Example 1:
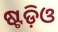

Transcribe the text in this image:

ଷ୍ଟଡ଼ିଓ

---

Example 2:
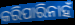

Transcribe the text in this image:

କରିପାରିନାହଁ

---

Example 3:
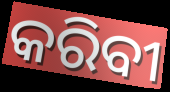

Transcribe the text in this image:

କରିବୀ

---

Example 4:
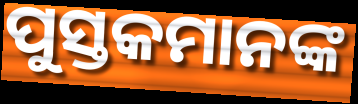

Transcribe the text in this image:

ପୁସ୍ତକମାନଙ୍କ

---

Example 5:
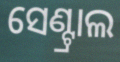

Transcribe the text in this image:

ସେଣ୍ଟ୍ରାଲ